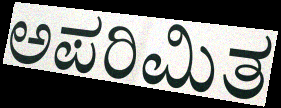
ಅಪರಿಮಿತ